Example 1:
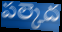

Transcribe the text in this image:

పల్కెద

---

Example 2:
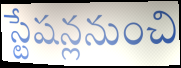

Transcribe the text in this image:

స్టేషన్లనుంచి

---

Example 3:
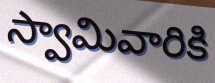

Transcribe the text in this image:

స్వామివారికి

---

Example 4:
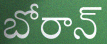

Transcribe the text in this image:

బోరాన్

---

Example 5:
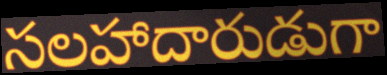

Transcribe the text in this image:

సలహాదారుడుగా